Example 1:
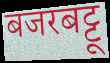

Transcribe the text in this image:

बजरबट्टू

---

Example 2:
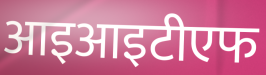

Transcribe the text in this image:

आइआइटीएफ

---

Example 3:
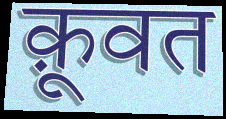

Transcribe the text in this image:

क़ूवत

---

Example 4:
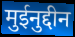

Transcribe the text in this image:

मुईनुद्दीन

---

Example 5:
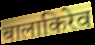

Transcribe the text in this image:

बालाकिरेव